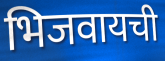
भिजवायची